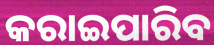
କରାଇପାରିବ